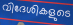
വിദേശികളുടെ